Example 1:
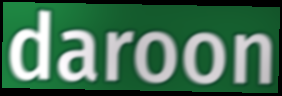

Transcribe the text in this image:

daroon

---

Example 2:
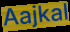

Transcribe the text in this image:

Aajkal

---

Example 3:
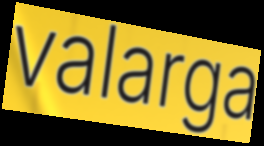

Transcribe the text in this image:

valarga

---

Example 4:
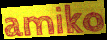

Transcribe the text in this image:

amiko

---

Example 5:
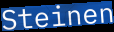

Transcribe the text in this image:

Steinen